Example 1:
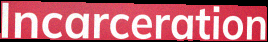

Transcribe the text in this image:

Incarceration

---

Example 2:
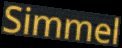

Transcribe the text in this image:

Simmel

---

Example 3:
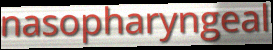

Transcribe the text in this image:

nasopharyngeal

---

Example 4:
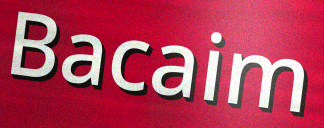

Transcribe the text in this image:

Bacaim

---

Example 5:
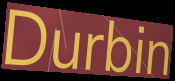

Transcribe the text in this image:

Durbin